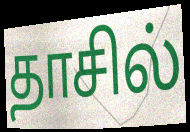
தாசில்